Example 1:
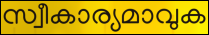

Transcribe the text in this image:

സ്വീകാര്യമാവുക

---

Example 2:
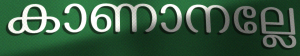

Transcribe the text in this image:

കാണാനല്ലേ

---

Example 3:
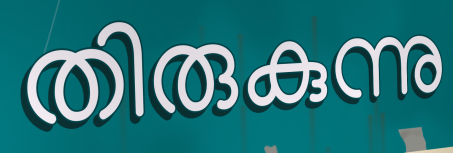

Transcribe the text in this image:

തിരുകുന്നു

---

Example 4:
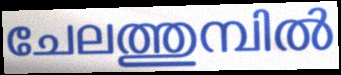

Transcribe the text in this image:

ചേലത്തുമ്പിൽ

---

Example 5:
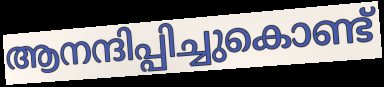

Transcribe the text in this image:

ആനന്ദിപ്പിച്ചുകൊണ്ട്